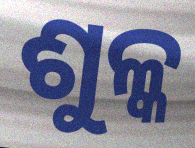
ଶୁଳ୍କ